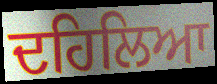
ਦਹਿਲਿਆ